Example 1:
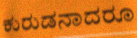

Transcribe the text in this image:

ಕುರುಡನಾದರೂ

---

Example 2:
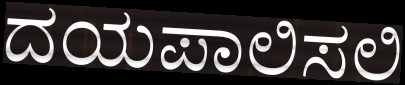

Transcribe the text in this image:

ದಯಪಾಲಿಸಲಿ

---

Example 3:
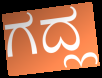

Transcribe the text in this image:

ಗದ್ಲ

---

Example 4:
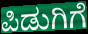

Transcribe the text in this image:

ಪಿಡುಗಿಗೆ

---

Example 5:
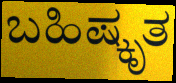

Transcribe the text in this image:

ಬಹಿಷ್ಕೃತ